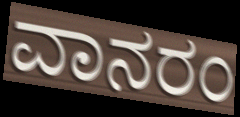
ವಾನರಂ